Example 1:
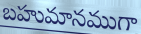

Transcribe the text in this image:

బహుమానముగా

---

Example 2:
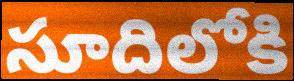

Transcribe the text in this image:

సూదిలోకి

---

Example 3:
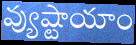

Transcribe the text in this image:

వ్యుష్టాయాం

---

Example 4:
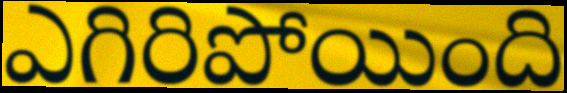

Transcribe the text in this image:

ఎగిరిపోయింది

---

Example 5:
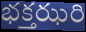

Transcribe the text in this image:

భక్తఝరి